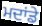
ਮਦਾਂਡੇ